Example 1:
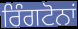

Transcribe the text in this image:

ਰਿੰਗਟੋਨਾਂ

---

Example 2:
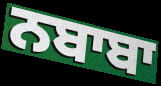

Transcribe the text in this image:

ਨਬਾਬਾ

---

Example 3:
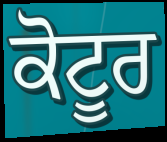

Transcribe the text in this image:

ਕੋਟੂਰ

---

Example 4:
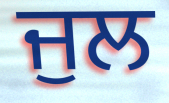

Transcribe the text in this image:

ਜੁਲ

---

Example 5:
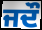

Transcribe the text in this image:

ਜਦੌ